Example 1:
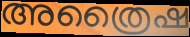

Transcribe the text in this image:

അത്രൈഷ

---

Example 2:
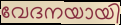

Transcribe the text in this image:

വേദനയായി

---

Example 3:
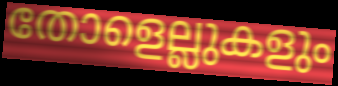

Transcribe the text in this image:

തോളെല്ലുകളും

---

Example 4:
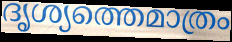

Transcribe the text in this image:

ദൃശ്യത്തെമാത്രം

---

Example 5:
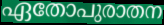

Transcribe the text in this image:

ഏതോപുരാതന